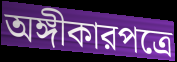
অঙ্গীকারপত্রে